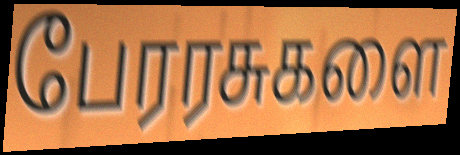
பேரரசுகளை